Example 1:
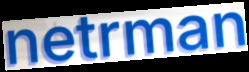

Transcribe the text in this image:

netrman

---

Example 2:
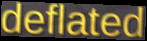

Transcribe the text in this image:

deflated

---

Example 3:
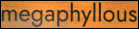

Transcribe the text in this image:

megaphyllous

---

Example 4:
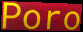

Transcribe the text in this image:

Poro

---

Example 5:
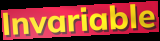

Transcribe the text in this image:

Invariable